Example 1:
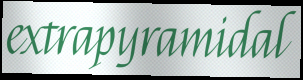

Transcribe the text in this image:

extrapyramidal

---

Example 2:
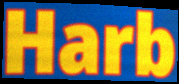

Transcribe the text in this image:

Harb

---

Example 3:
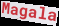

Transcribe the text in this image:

Magala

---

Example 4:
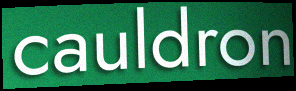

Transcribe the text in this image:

cauldron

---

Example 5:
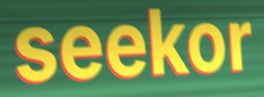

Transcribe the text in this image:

seekor